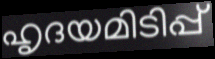
ഹൃദയമിടിപ്പ്